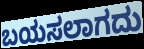
ಬಯಸಲಾಗದು